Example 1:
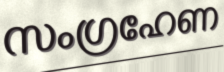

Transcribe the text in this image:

സംഗ്രഹേണ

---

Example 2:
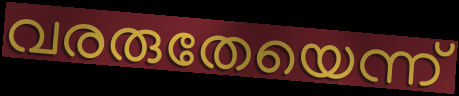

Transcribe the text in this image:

വരരുതേയെന്ന്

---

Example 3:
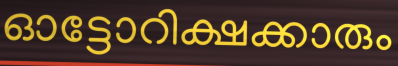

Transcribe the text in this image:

ഓട്ടോറിക്ഷക്കാരും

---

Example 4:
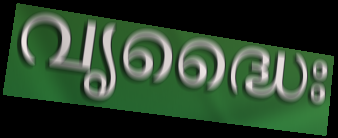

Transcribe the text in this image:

വൃദ്ധൈഃ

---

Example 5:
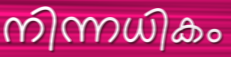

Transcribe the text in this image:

നിന്നധികം